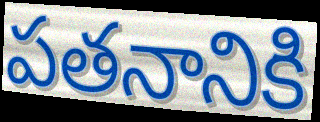
పతనానికి